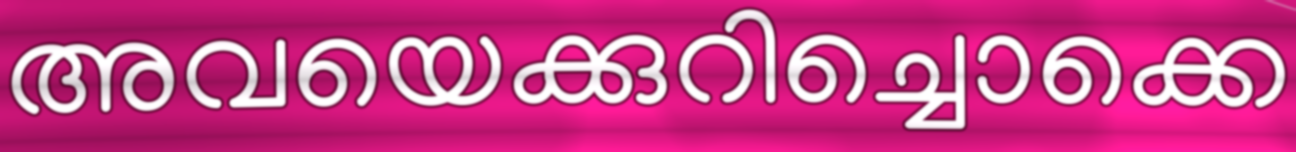
അവയെക്കുറിച്ചൊക്കെ